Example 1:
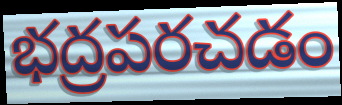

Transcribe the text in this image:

భద్రపరచడం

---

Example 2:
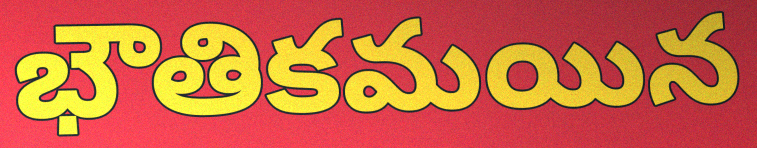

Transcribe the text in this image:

భౌతికమయిన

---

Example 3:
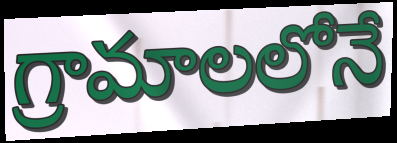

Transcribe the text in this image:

గ్రామాలలోనే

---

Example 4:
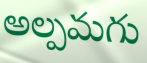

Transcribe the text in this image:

అల్పమగు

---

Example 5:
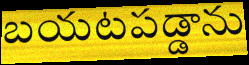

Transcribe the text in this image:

బయటపడ్డాను